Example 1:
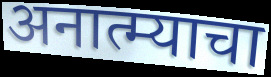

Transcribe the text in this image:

अनात्म्याचा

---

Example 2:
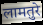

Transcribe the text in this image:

लामतुरे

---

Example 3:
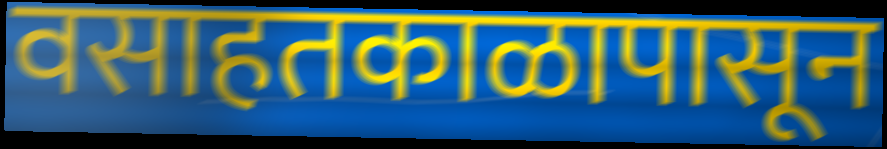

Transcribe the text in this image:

वसाहतकाळापासून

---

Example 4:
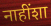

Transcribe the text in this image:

नाहींशा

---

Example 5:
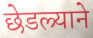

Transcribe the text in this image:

छेडल्याने